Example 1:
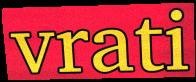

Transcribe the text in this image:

vrati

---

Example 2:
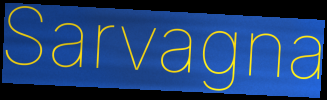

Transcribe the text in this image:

Sarvagna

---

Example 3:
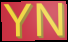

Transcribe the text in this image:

YN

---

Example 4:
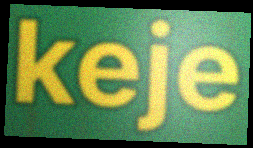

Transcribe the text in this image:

keje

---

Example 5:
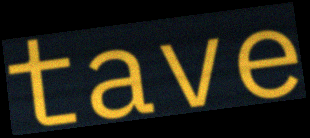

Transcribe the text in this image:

tave